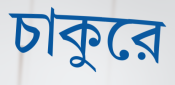
চাকুরে